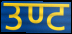
उण्ट